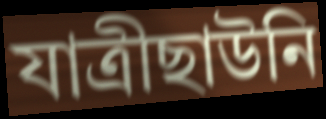
যাত্রীছাউনি